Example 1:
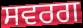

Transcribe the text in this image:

ਸਵਰਗ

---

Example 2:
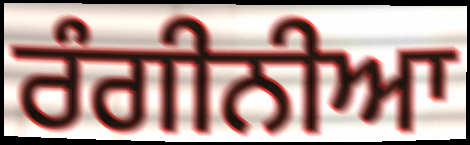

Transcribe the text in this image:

ਰੰਗੀਨੀਆ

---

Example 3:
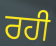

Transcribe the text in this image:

ਰਹੀ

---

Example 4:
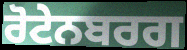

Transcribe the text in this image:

ਰੋਟੇਨਬਰਗ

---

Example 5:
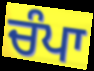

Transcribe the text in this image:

ਚੰਪਾ